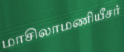
மாசிலாமணியீசர்